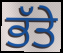
ਭੱਤੇ